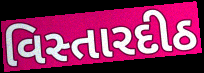
વિસ્તારદીઠ